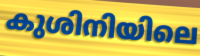
കുശിനിയിലെ